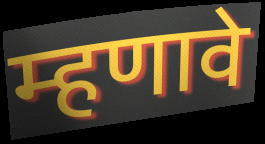
म्हणावे